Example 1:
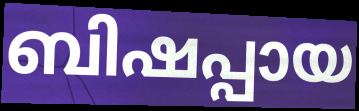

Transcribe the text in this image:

ബിഷപ്പായ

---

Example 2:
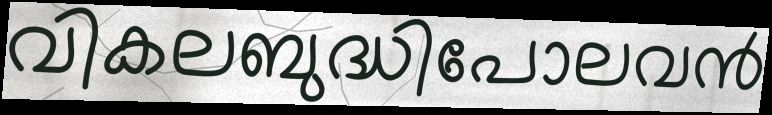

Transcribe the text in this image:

വികലബുദ്ധിപോലവൻ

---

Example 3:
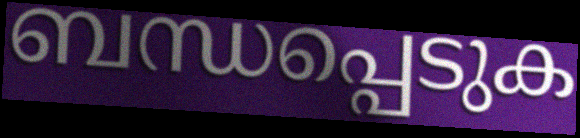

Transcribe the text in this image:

ബന്ധപ്പെടുക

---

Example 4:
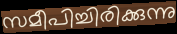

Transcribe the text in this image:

സമീപിച്ചിരിക്കുന്നു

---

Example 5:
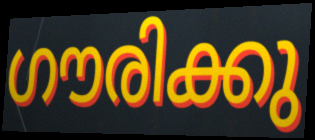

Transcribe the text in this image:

ഗൗരിക്കു